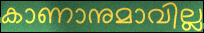
കാണാനുമാവില്ല